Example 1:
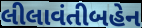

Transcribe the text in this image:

લીલાવંતીબહેન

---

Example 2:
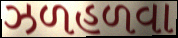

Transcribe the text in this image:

ઝળહળવા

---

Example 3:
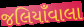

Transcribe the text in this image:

જલિયાઁવાલા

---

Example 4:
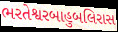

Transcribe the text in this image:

ભરતેશ્વરબાહુબલિરાસ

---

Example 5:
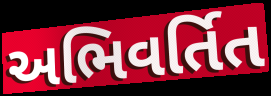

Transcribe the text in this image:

અભિવર્તિત